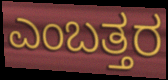
ಎಂಬತ್ತರ